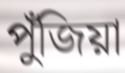
পুঁজিয়া